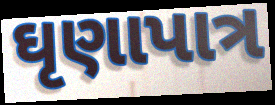
ઘૃણાપાત્ર